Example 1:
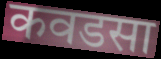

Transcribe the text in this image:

कवडसा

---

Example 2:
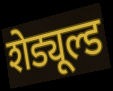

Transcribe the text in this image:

शेड्यूल्ड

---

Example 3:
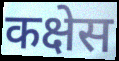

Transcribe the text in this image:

कक्षेस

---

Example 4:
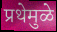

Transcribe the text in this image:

प्रथेमुळे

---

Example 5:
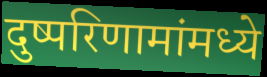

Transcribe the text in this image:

दुष्परिणामांमध्ये